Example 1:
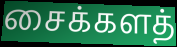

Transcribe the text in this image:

சைக்களத்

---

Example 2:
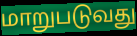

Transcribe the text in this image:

மாறுபடுவது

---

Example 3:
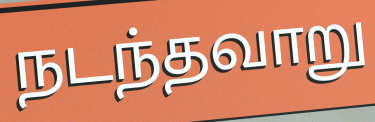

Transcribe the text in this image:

நடந்தவாறு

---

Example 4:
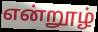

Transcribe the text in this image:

என்றூழ்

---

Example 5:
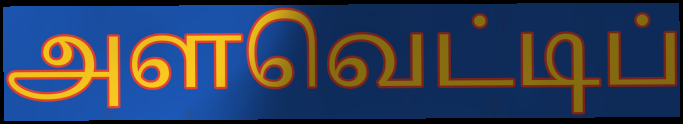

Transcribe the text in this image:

அளவெட்டிப்